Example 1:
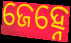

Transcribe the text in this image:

ଜେହ୍ନେ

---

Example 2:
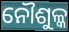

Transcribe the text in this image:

ନୌଶୁଳ୍କ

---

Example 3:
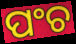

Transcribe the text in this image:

ପଂଚ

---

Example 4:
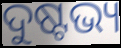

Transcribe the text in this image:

ଦୁଷ୍ଟଭ୍ୟ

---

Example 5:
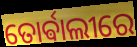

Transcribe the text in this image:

ତୋର୍ଵାଲୀରେ